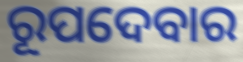
ରୂପଦେବାର